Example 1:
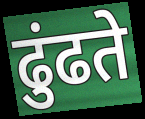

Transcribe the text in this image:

ढुंढते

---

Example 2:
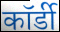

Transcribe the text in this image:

कॉर्डी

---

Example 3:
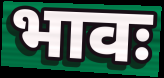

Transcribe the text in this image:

भावः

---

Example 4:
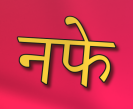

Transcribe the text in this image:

नफे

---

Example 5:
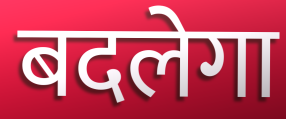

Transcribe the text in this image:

बदलेगा